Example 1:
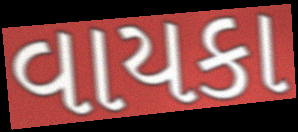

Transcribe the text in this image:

વાયકા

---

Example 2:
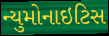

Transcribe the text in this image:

ન્યુમોનાઇટિસ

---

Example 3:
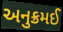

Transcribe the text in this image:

અનુક્રમઈ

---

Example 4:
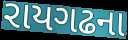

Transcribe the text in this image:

રાયગઢના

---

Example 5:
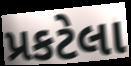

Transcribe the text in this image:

પ્રકટેલા